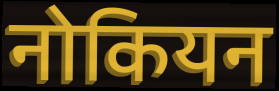
नोकियन